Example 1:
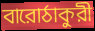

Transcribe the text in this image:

বারোঠাকুরী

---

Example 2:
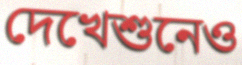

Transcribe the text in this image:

দেখেশুনেও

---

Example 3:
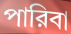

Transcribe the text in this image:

পারিবা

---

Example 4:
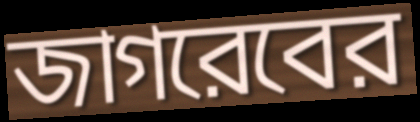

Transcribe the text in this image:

জাগরেবের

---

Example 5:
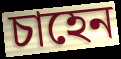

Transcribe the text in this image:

চাহেন